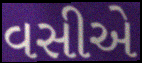
વસીએ